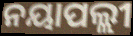
ନୟାପଲ୍ଲୀ